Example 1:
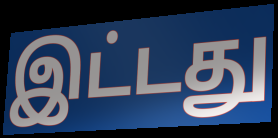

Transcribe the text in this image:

இட்டது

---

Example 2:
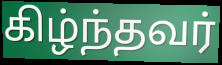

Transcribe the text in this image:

கிழ்ந்தவர்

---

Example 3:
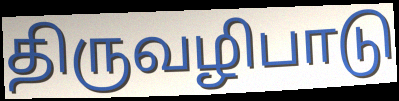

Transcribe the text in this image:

திருவழிபாடு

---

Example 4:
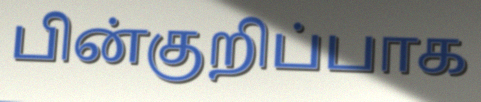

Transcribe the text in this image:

பின்குறிப்பாக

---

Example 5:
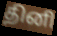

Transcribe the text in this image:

தினி